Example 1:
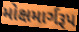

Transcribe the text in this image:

મોક્ષમાર્ગરૂપ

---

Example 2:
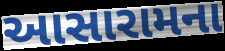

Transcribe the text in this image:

આસારામના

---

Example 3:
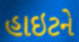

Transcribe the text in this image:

હાઇટને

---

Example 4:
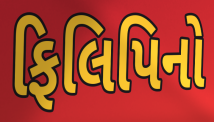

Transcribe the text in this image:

ફિલિપિનો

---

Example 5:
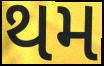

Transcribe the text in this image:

થમ